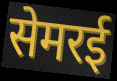
सेमरई